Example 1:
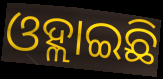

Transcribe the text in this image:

ଓହ୍ଲାଇଛି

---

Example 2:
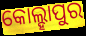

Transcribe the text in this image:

କୋଲ୍ହାପୁର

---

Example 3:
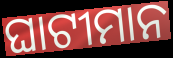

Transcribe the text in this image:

ଘାଟୀମାନ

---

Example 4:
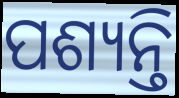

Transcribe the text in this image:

ପଶ୍ୟନ୍ତି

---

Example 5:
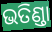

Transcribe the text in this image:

ଭତିଣ୍ଡା